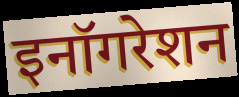
इनॉगरेशन